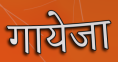
गायेजा